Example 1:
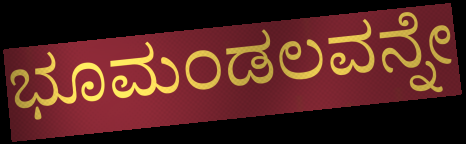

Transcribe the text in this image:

ಭೂಮಂಡಲವನ್ನೇ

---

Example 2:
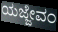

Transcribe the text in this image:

ಯಜ್ಜೇವಂ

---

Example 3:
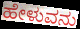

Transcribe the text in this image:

ಹೇಳುವನು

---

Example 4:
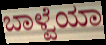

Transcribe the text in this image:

ಬಾಳ್ವೆಯಾ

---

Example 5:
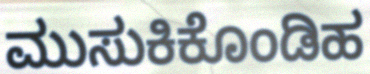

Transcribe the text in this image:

ಮುಸುಕಿಕೊಂಡಿಹ